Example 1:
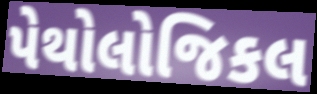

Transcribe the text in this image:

પેથોલોજિકલ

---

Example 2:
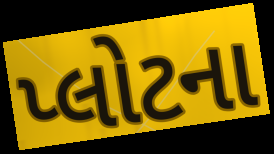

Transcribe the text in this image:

પ્લોટના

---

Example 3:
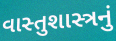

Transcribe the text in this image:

વાસ્તુશાસ્ત્રનું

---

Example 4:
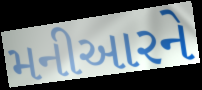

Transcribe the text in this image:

મનીઆરને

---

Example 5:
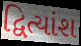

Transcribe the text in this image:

દ્વિત્યાંશ